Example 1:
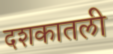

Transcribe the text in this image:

दशकातली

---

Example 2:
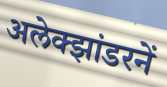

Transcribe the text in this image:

अलेक्झांडरनें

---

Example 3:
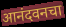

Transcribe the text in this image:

आनंदवनचा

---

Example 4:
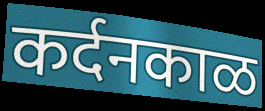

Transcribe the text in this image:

कर्दनकाळ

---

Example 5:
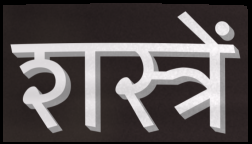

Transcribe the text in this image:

शस्त्रें